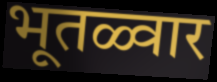
भूतळ्वार